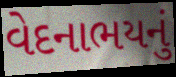
વેદનાભયનું